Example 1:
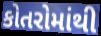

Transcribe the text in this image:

કોતરોમાંથી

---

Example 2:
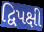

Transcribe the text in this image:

દ્વિપક્ષી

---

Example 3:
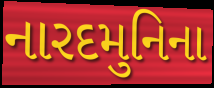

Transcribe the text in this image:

નારદમુનિના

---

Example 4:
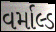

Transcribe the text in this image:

વર્માલ્ડ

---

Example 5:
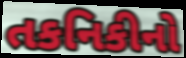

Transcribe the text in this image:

તકનિકીનો